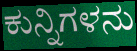
ಕುನ್ನಿಗಳನು